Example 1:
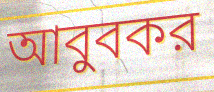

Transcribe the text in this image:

আবুবকর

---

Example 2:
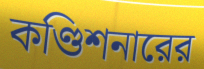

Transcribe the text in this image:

কণ্ডিশনারের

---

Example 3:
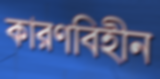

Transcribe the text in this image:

কারণবিহীন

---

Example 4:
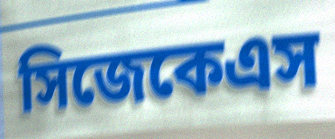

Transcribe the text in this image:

সিজেকেএস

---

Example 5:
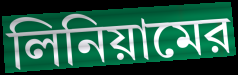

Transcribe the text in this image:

লিনিয়ামের